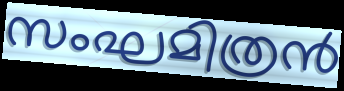
സംഘമിത്രൻ